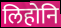
लिहोनि